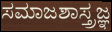
ಸಮಾಜಶಾಸ್ತ್ರಜ್ಞ